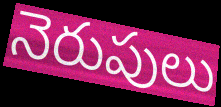
నెరుపులు